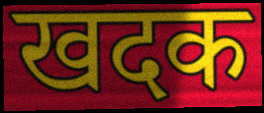
खदक